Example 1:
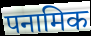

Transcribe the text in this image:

पनामिक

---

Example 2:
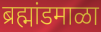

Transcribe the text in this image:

ब्रह्मांडमाळा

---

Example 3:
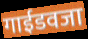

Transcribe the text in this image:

गाईडवजा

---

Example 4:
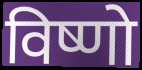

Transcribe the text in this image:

विष्णो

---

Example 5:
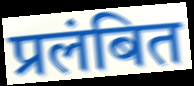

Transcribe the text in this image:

प्रलंबित